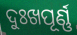
ଦୁଃଖପୂର୍ଣ୍ଣ